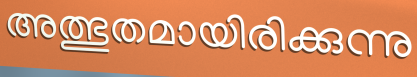
അത്ഭുതമായിരിക്കുന്നു